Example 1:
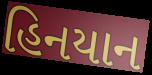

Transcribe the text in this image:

હિનયાન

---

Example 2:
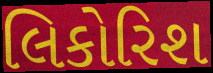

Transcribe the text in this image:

લિકોરિશ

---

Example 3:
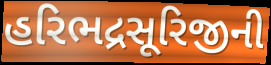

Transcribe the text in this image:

હરિભદ્રસૂરિજીની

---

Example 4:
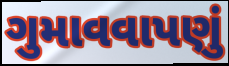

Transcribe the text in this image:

ગુમાવવાપણું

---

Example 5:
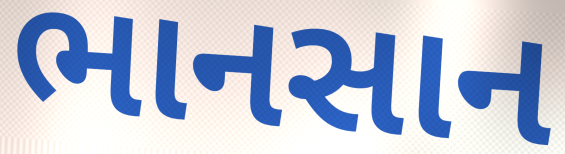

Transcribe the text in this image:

ભાનસાન